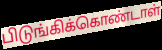
பிடுங்கிக்கொண்டாள்